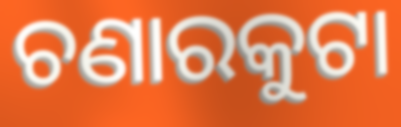
ଚଣାରକୁଟା